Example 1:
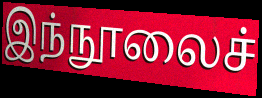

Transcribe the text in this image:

இந்நூலைச்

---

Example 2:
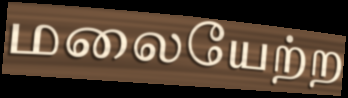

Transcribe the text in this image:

மலையேற்ற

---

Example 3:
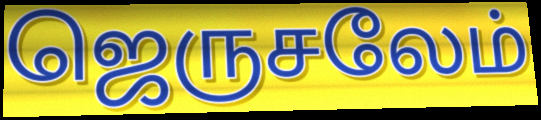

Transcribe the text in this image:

ஜெருசலேம்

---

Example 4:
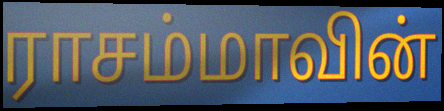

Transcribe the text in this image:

ராசம்மாவின்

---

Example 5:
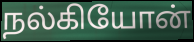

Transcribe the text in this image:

நல்கியோன்